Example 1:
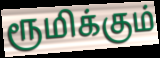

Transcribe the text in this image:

ரூமிக்கும்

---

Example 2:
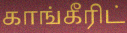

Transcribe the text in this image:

காங்கீரிட்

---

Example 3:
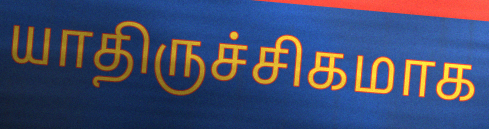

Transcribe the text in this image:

யாதிருச்சிகமாக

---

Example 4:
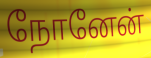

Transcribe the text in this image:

நோனேன்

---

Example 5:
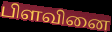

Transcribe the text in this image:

பிளவினை